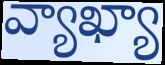
వ్యాఖ్యా